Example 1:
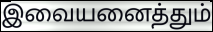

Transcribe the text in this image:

இவையனைத்தும்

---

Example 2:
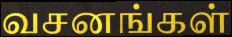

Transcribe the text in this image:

வசனங்கள்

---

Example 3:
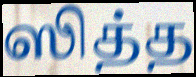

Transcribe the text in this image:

ஸித்த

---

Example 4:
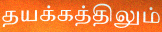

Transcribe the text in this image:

தயக்கத்திலும்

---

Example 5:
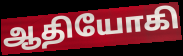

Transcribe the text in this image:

ஆதியோகி